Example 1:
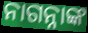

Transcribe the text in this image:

ନାଗନ୍ନାଙ୍କ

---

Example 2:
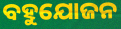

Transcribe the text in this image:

ବହୁଯୋଜନ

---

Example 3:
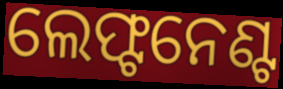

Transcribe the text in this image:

ଲେଫ୍ଟନେଣ୍ଟ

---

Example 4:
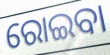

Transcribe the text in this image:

ରୋଇବା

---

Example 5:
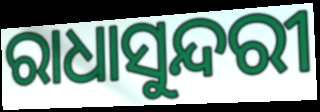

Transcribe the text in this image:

ରାଧାସୁନ୍ଦରୀ